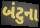
બંટુના